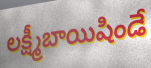
లక్ష్మీబాయిషిండే